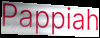
Pappiah